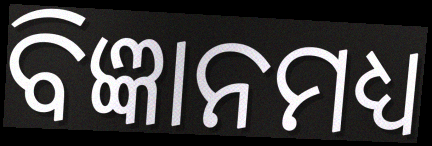
ବିଜ୍ଞାନମଧ୍ୟ